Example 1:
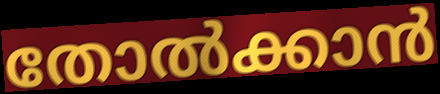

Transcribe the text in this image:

തോൽക്കാൻ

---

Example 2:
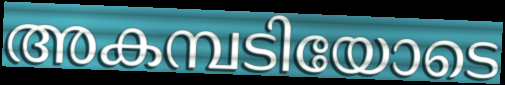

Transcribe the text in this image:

അകമ്പടിയോടെ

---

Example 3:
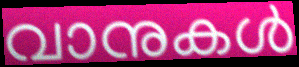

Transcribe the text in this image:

വാനുകൾ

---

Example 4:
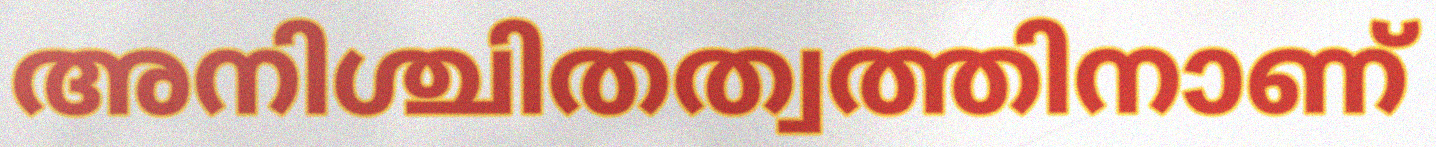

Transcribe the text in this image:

അനിശ്ചിതത്വത്തിനാണ്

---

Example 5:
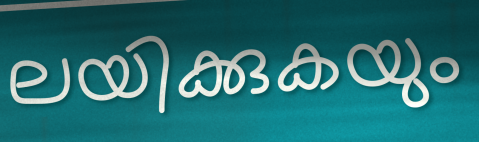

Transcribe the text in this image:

ലയിക്കുകയും